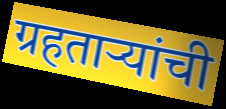
ग्रहताऱ्यांची